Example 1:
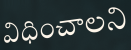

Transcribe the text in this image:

విధించాలని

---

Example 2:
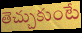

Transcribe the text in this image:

తెచ్చుకుంటే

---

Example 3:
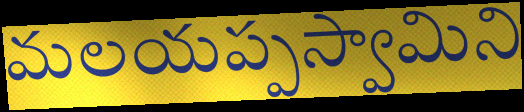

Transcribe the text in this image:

మలయప్పస్వామిని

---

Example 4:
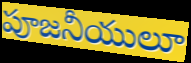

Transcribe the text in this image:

పూజనీయులూ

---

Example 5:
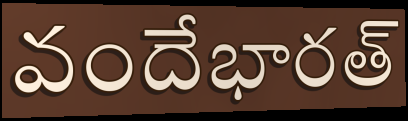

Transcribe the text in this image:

వందేభారత్